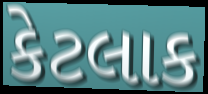
કેટલાક